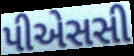
પીએસસી